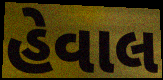
હેવાલ